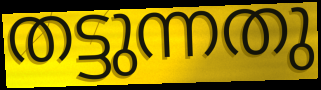
തട്ടുന്നതു